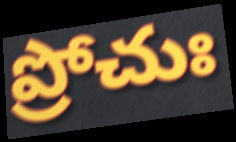
ప్రోచుః